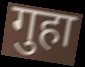
गुहा